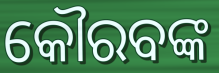
କୌରବଙ୍କ